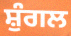
ਸ਼ੁੰਗਲ